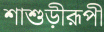
শাশুড়ীরূপী